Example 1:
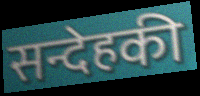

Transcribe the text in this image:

सन्देहकी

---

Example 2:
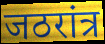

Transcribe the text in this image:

जठरांत्र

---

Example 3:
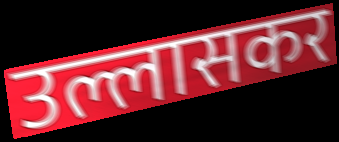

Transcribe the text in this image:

उल्लासकर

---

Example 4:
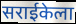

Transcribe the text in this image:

सराईकेला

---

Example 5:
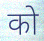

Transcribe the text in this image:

को